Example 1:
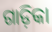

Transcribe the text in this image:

ଗାଡ଼ିକା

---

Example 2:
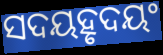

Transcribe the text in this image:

ସଦୟହୃଦୟଂ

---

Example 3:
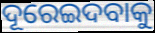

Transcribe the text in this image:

ଦୂରେଇଦବାକୁ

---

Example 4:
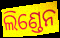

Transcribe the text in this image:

ଲିଣ୍ଡେନ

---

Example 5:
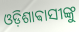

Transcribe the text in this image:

ଓଡ଼ିଶାଵାସୀଙ୍କୁ